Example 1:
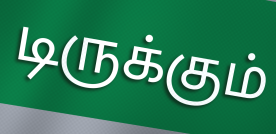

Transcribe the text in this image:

டிருக்கும்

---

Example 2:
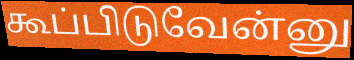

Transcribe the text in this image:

கூப்பிடுவேன்னு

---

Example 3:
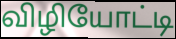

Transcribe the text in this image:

விழியோட்டி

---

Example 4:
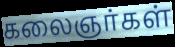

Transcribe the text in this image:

கலைஞர்கள்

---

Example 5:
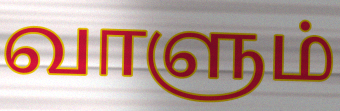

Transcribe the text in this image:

வாளும்